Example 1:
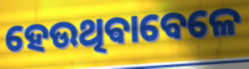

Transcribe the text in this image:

ହେଉଥିଵାବେଳେ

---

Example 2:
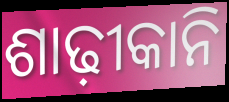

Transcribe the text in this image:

ଶାଢ଼ୀକାନି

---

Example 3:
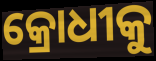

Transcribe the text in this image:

କ୍ରୋଧୀକୁ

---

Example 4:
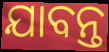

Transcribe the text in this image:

ଯାବନ୍ତ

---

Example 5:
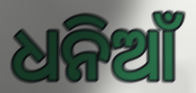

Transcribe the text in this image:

ଧନିଆଁ